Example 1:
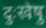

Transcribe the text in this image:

दुःखेषु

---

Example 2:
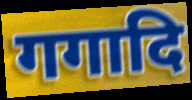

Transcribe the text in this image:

गगादि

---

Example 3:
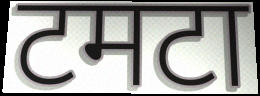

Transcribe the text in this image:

टमटा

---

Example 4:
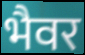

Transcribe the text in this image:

भैवर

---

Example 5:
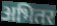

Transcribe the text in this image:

अभितर